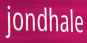
jondhale